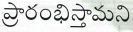
ప్రారంభిస్తామని